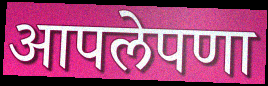
आपलेपणा